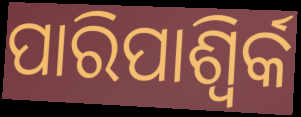
ପାରିପାଶ୍ୱିର୍କ